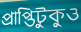
প্রাপ্তিটুকুও